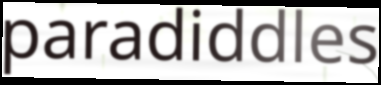
paradiddles